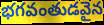
భగవంతుడవైన